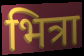
भित्रा